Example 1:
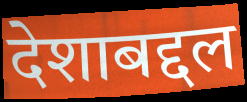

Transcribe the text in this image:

देशाबद्दल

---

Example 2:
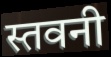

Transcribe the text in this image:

स्तवनी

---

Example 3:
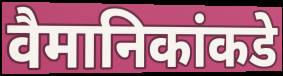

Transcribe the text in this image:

वैमानिकांकडे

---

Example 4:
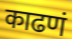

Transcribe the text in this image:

काढणं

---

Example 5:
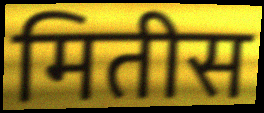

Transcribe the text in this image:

मितीस